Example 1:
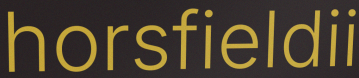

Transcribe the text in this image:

horsfieldii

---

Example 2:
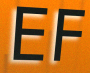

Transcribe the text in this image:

EF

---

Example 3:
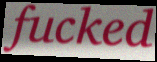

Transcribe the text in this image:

fucked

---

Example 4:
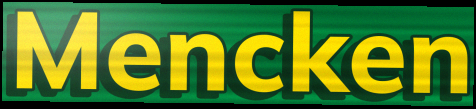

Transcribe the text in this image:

Mencken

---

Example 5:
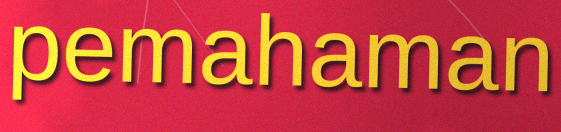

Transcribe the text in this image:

pemahaman